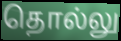
தொல்லு